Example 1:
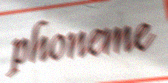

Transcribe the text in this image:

phoneme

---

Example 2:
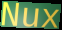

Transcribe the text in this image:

Nux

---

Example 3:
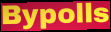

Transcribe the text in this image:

Bypolls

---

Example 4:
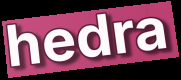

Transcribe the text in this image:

hedra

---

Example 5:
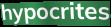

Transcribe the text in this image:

hypocrites